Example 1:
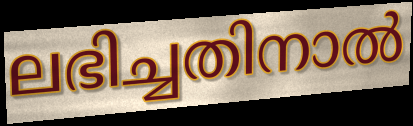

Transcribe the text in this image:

ലഭിച്ചതിനാൽ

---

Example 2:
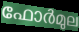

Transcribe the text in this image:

ഫോർമുല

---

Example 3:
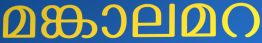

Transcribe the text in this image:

മങ്കാലമറ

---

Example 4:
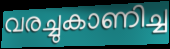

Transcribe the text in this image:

വരച്ചുകാണിച്ച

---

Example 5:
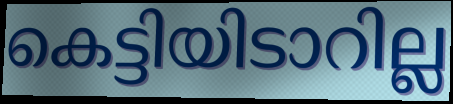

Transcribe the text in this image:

കെട്ടിയിടാറില്ല